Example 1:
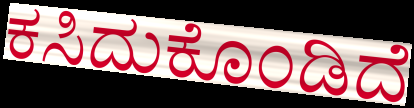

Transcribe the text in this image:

ಕಸಿದುಕೊಂಡಿದೆ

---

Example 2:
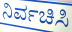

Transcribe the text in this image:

ನಿರ್ವಚಿಸಿ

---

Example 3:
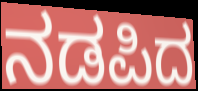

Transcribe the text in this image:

ನಡಪಿದ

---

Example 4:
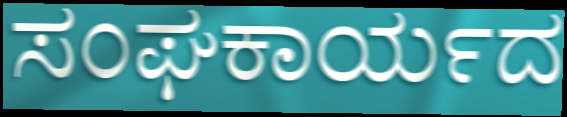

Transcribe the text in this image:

ಸಂಘಕಾರ್ಯದ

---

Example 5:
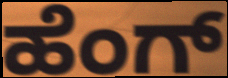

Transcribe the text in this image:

ಹೆಂಗ್